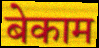
बेकाम